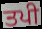
ਤਪੀ